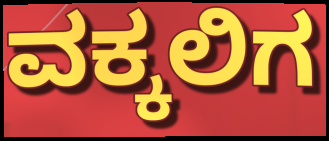
ವಕ್ಕಲಿಗ